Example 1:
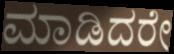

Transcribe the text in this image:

ಮಾಡಿದರೇ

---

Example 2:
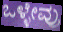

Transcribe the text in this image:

ಒಳ್ಳೇವ್ರು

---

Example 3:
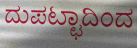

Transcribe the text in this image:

ದುಪಟ್ಟಾದಿಂದ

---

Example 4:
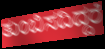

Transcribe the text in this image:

ತುಂಬಿಸದಿದ್ದರೆ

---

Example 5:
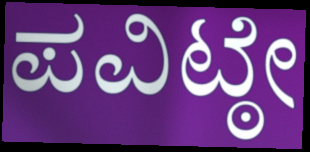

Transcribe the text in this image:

ಪವಿಟ್ಠೇ